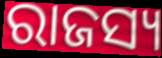
ରାଜସ୍ୟ